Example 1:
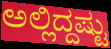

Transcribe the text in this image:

ಅಲ್ಲಿದ್ದಷ್ಟು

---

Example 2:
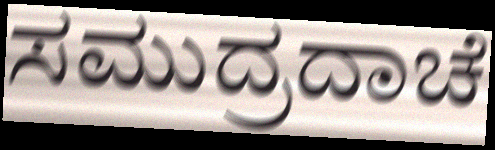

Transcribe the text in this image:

ಸಮುದ್ರದಾಚೆ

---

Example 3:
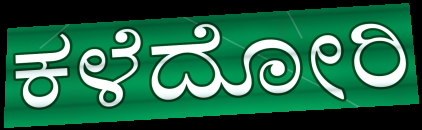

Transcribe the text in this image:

ಕಳೆದೋರಿ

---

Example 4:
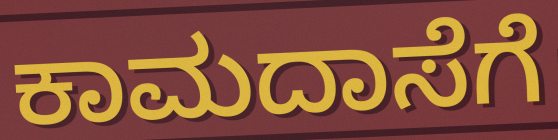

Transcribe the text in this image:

ಕಾಮದಾಸೆಗೆ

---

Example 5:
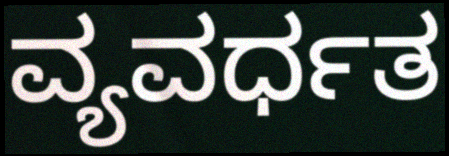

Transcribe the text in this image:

ವ್ಯವರ್ಧತ